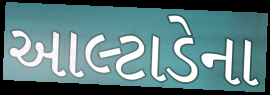
આલ્ટાડેના